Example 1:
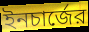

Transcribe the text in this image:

ইনচার্জের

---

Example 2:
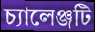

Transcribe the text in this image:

চ্যালেঞ্জটি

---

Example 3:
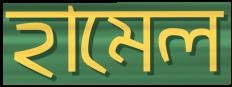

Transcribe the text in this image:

হামেল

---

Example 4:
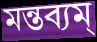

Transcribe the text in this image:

মন্তব্যম্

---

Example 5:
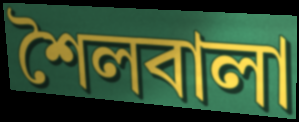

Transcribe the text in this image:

শৈলবালা